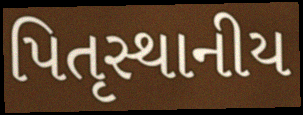
પિતૃસ્થાનીય